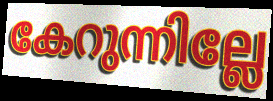
കേറുന്നില്ലേ